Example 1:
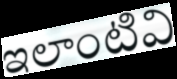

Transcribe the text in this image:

ఇలాంటివి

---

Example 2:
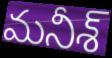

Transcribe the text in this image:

మనీశ్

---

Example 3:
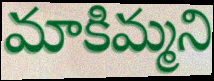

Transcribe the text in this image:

మాకిమ్మని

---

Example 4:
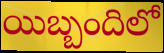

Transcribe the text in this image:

యిబ్బందిలో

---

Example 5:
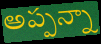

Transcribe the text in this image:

అప్పన్నా